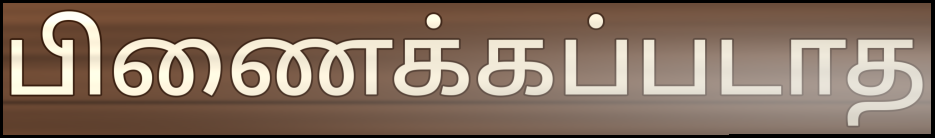
பிணைக்கப்படாத